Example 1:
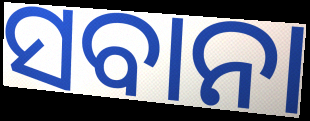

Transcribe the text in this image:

ସବାନା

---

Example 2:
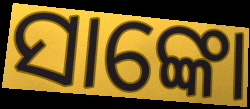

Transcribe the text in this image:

ସାଙ୍କୋ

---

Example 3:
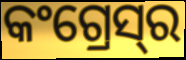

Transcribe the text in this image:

କଂଗ୍ରେସ୍‌ର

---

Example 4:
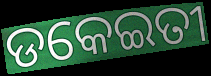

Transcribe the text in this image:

ଡକେଇତୀ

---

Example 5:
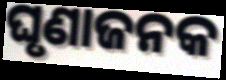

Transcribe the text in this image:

ଘୃଣାଜନକ